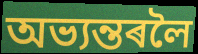
অভ্যন্তৰলৈ